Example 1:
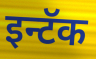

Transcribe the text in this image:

इन्टॅक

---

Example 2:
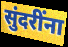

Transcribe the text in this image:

सुंदरींना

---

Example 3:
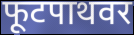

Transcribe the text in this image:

फूटपाथवर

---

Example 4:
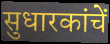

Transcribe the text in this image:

सुधारकांचें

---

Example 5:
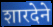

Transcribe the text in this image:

शारदेने